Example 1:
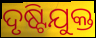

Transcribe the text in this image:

ଦୃଷ୍ଟିଯୁକ୍ତ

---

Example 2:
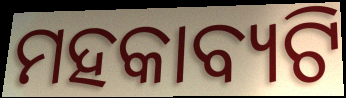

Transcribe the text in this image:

ମହକାବ୍ୟଟି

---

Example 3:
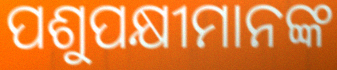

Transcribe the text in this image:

ପଶୁପକ୍ଷୀମାନଙ୍କ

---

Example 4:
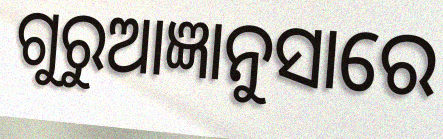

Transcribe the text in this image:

ଗୁରୁଆଜ୍ଞାନୁସାରେ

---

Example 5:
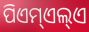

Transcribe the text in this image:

ପିଏମ୍ଏଲ୍ଏ